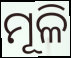
ମୂଳି